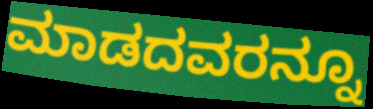
ಮಾಡದವರನ್ನೂ